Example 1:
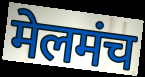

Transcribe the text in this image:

मेलमंच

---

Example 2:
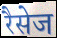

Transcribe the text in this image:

रैसेज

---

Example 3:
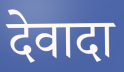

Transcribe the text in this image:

देवादा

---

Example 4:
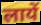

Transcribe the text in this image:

लायें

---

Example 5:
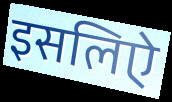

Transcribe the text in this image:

इसलिऐ